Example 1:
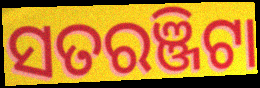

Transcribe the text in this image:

ସତରଞ୍ଜିଟା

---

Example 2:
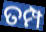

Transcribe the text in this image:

ତମ୍ପ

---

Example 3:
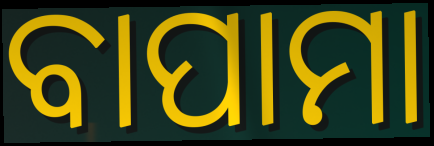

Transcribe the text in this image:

ବାପାମା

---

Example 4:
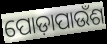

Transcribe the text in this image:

ପୋଡ଼ାପାଉଁଶ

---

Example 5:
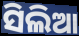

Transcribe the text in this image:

ସିଲିଆ